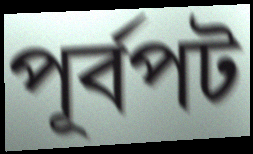
পূর্বপট